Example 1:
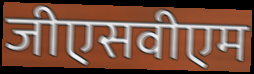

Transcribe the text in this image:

जीएसवीएम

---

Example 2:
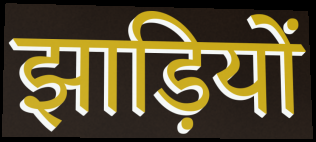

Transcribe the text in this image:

झाड़ियों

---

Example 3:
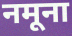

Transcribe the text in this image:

नमूना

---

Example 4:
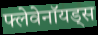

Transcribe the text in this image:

फ्लेवेनॉयड्स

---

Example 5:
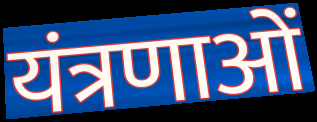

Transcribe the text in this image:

यंत्रणाओं